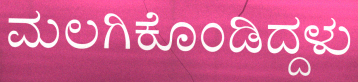
ಮಲಗಿಕೊಂಡಿದ್ದಳು